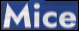
Mice